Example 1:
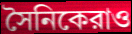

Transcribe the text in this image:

সৈনিকেরাও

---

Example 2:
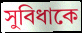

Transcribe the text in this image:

সুবিধাকে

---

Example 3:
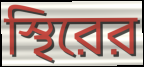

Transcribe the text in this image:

স্থিরের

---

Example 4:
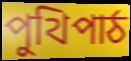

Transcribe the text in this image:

পুথিপাঠ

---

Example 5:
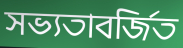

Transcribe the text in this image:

সভ্যতাবর্জিত